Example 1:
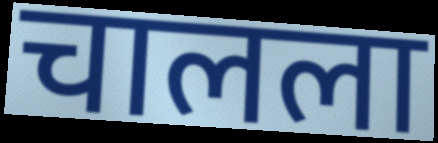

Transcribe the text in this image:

चालला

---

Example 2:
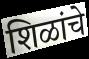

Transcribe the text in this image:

शिळांचे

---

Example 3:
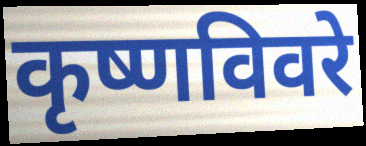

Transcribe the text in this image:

कृष्णविवरे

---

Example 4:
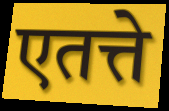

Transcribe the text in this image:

एतत्ते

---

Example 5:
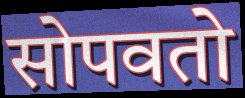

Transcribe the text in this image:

सोपवतो